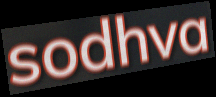
sodhva